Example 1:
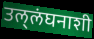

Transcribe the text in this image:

उल्लंघनाशी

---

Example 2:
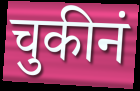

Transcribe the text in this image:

चुकीनं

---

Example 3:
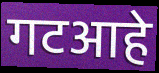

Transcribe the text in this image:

गटआहे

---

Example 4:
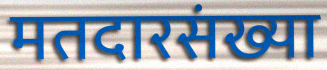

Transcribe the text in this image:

मतदारसंख्या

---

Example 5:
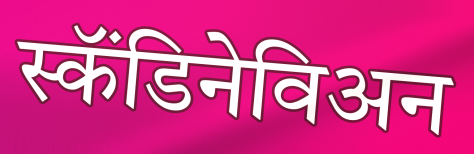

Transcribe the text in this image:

स्कॅंडिनेविअन